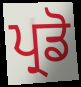
ਪ੍ਰਡੋ